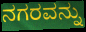
ನಗರವನ್ನು